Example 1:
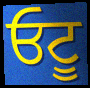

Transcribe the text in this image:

ਓਟੂ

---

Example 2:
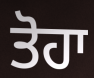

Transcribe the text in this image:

ਤੋਹਾ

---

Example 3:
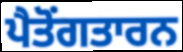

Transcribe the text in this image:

ਪੈਤੋਂਗਤਾਰਨ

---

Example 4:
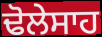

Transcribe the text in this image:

ਢੋਲੇਸਾਹ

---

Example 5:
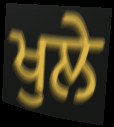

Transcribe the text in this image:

ਖੁਲੇ